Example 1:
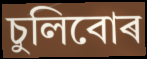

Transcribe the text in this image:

চুলিবোৰ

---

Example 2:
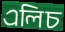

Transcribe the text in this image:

এলিচ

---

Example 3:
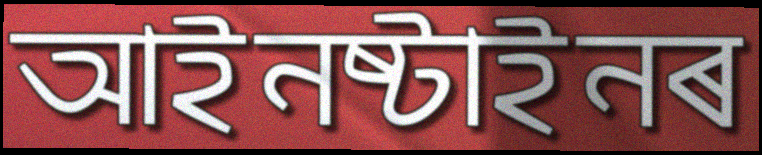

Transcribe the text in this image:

আইনষ্টাইনৰ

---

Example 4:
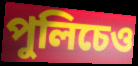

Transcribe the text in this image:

পুলিচেও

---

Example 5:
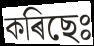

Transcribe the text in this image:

কৰিছেঃ